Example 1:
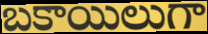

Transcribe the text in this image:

బకాయిలుగా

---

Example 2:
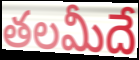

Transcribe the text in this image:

తలమీదే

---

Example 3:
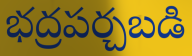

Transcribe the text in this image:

భద్రపర్చబడి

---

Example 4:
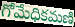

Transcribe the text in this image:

గోమేధికమణి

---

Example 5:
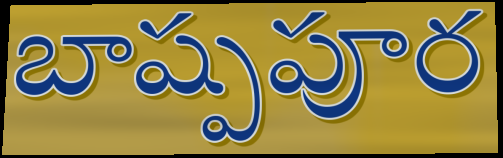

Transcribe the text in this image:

బాష్పపూర